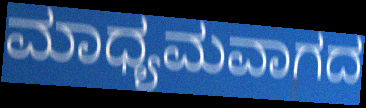
ಮಾಧ್ಯಮವಾಗದ